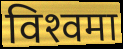
विश्वमा